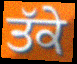
ਤੱਕੇ